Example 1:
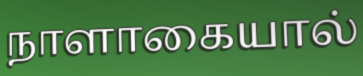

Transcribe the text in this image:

நாளாகையால்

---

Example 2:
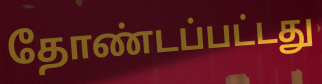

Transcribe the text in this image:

தோண்டப்பட்டது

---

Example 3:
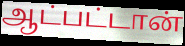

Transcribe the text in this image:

ஆட்பட்டான்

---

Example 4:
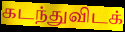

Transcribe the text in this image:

கடந்துவிடக்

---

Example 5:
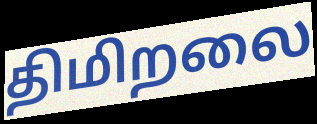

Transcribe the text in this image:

திமிறலை